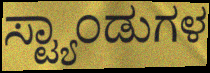
ಸ್ಟ್ಯಾಂಡುಗಳ